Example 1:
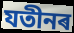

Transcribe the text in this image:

যতীনৰ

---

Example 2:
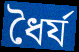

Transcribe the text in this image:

ধৈৰ্য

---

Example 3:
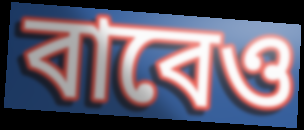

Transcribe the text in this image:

বাবেও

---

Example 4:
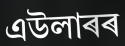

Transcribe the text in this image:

এউলাৰৰ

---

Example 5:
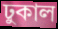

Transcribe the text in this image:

ঢুকাল